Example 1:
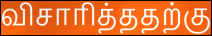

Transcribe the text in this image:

விசாரித்ததற்கு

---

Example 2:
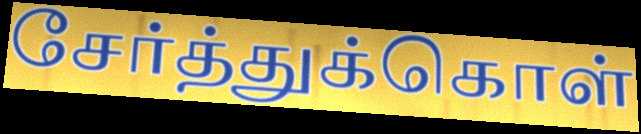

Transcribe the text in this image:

சேர்த்துக்கொள்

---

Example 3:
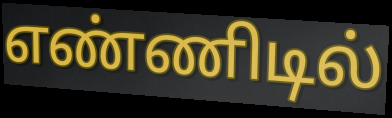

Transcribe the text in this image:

எண்ணிடில்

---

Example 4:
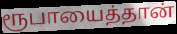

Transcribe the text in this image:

ரூபாயைத்தான்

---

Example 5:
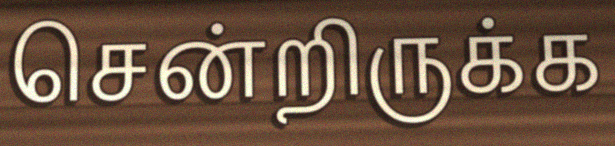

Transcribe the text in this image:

சென்றிருக்க